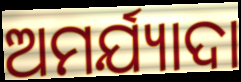
ଅମର୍ଯ୍ୟାଦା